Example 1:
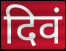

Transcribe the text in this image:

दिवं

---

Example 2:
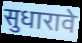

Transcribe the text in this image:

सुधारावे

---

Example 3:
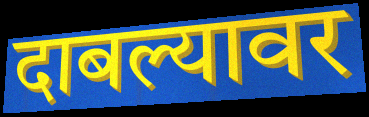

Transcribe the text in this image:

दाबल्यावर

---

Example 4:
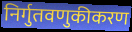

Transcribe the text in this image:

निर्गुतवणुकीकरण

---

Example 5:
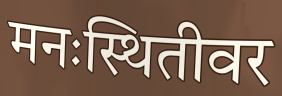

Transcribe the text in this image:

मनःस्थितीवर